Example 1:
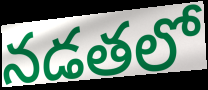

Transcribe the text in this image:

నడతలో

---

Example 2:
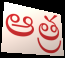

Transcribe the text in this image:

ఆత్ర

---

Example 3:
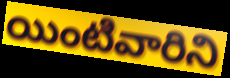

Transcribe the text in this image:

యింటివారిని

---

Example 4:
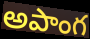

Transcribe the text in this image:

అపాంగ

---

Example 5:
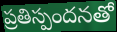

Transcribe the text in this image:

ప్రతిస్పందనతో